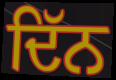
ਦਿੱਨ